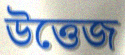
উত্তেজ